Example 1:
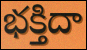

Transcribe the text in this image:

భక్తిదా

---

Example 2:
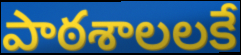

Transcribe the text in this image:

పాఠశాలలకే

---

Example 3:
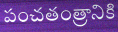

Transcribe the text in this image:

పంచతంత్రానికి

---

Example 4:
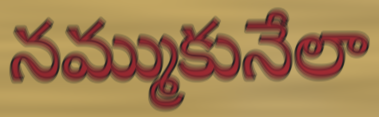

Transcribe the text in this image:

నమ్ముకునేలా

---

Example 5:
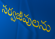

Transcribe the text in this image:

సర్వజీవులను